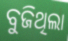
ବୁଜିଥିଲା